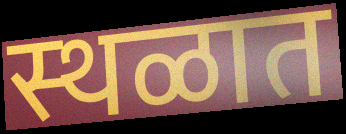
स्थळात